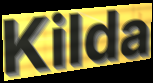
Kilda